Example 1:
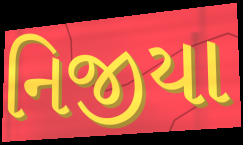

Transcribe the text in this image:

નિજીયા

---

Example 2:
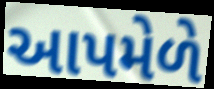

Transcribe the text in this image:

આપમેળે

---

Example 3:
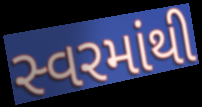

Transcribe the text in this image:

સ્વરમાંથી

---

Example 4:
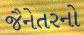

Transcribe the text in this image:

જૈનેતરનો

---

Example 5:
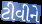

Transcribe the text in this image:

ટીવીને